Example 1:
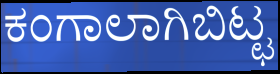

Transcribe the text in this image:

ಕಂಗಾಲಾಗಿಬಿಟ್ಟ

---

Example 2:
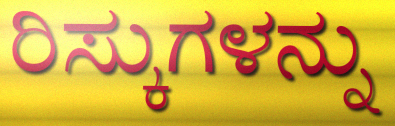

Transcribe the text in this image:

ರಿಸ್ಕುಗಳನ್ನು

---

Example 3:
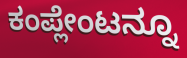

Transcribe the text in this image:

ಕಂಪ್ಲೇಂಟನ್ನೂ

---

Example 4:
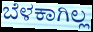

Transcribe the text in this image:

ಬೆಳಕಾಗಿಲ್ಲ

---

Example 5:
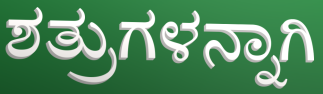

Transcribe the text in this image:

ಶತ್ರುಗಳನ್ನಾಗಿ